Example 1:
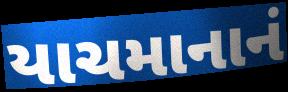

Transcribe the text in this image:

યાચમાનાનં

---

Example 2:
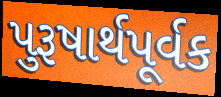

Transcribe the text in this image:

પુરૂષાર્થપૂર્વક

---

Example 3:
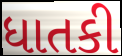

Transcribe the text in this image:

ધાતકી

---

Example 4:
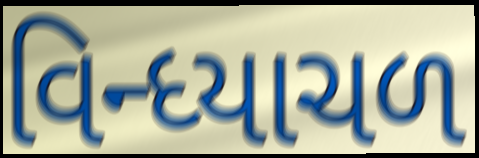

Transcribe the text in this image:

વિન્ધ્યાચળ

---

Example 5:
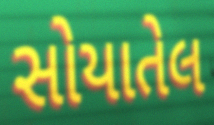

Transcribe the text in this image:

સોયાતેલ